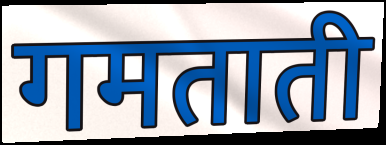
गमताती